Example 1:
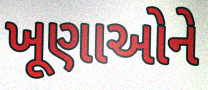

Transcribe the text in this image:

ખૂણાઓને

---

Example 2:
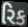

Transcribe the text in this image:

રિક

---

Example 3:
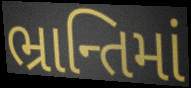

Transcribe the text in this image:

ભ્રાન્તિમાં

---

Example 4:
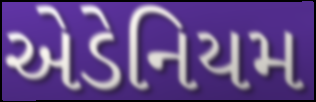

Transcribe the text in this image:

એડેનિયમ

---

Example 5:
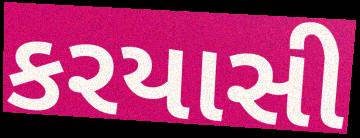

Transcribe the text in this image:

કરયાસી